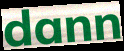
dann